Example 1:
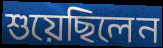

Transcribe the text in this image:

শুয়েছিলেন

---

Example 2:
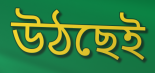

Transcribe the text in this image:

উঠছেই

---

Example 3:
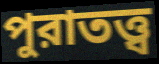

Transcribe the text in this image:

পুরাতত্ত্ব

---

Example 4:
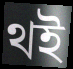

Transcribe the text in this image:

থই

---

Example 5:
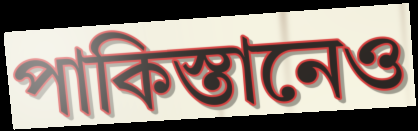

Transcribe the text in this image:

পাকিস্তানেও